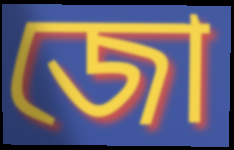
জো